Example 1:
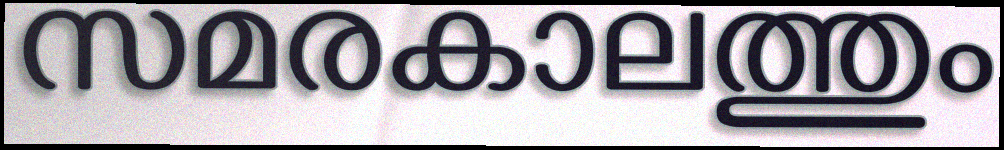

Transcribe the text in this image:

സമരകാലത്തും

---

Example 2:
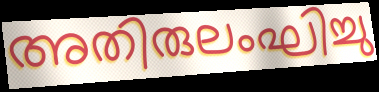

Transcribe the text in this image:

അതിരുലംഘിച്ചു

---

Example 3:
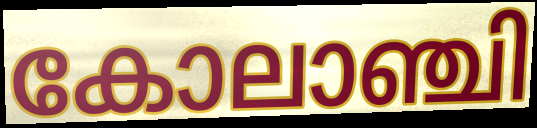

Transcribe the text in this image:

കോലാഞ്ചി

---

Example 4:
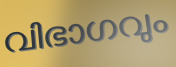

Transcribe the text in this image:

വിഭാഗവും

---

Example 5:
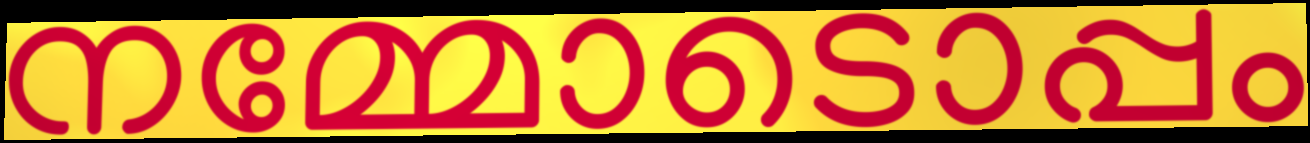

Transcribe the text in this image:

നമ്മോടൊപ്പം